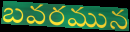
బవరమున